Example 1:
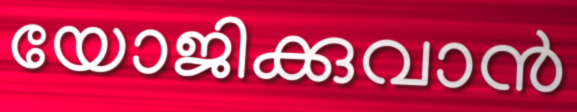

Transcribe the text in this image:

യോജിക്കുവാൻ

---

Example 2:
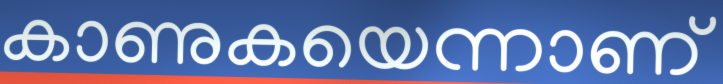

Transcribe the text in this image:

കാണുകയെന്നാണ്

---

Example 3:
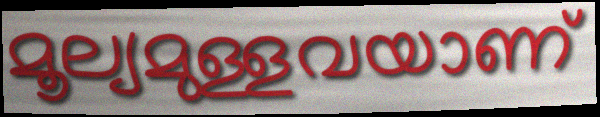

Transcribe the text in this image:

മൂല്യമുള്ളവയാണ്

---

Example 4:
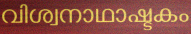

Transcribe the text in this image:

വിശ്വനാഥാഷ്ടകം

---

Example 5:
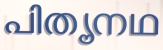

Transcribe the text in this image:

പിതൄനഥ